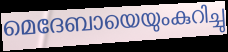
മെദേബായെയുംകുറിച്ചു